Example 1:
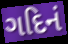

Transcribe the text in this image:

ગદિનં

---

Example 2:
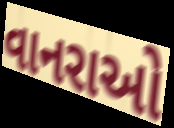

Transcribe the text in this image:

વાનરાઓ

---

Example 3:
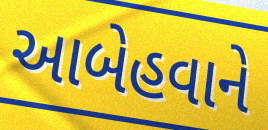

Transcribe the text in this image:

આબેહવાને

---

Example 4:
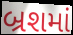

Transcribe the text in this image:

બ્રશમાં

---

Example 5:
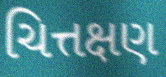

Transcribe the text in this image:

ચિત્તક્ષણ